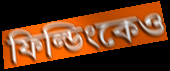
ফিল্ডিংকেও